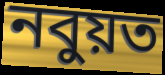
নবুয়ত